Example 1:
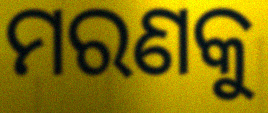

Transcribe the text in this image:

ମରଣକୁ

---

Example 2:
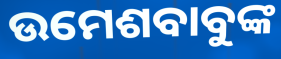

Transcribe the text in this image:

ଉମେଶବାବୁଙ୍କ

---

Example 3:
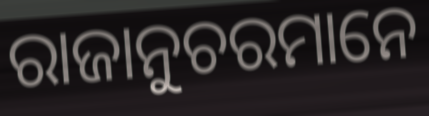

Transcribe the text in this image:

ରାଜାନୁଚରମାନେ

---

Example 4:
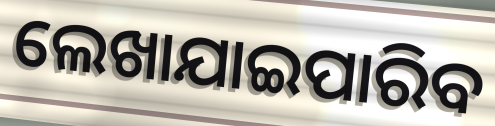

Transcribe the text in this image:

ଲେଖାଯାଇପାରିବ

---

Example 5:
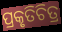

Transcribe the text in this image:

ପ୍ରକୃତିଚିତ୍ର